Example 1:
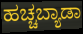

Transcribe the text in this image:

ಹಚ್ಚಬ್ಯಾಡಾ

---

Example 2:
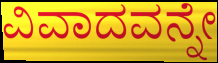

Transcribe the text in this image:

ವಿವಾದವನ್ನೇ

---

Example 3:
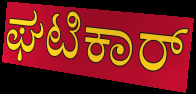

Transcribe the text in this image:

ಘಟಿಕಾರ್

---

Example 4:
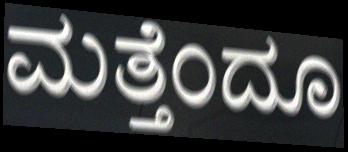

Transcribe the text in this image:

ಮತ್ತೆಂದೂ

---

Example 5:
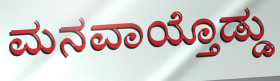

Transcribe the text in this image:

ಮನವಾಯ್ತೊಡ್ಡು